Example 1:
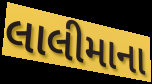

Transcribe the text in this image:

લાલીમાના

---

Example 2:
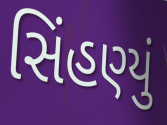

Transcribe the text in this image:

સિંહણ્યું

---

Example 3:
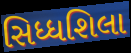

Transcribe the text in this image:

સિધ્ધશિલા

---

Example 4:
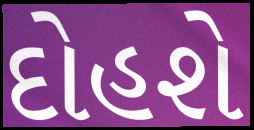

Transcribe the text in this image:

દોહશે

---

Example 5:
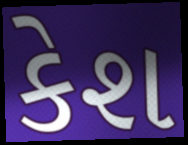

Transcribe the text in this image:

કેશ